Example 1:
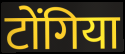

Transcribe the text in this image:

टोंगिया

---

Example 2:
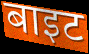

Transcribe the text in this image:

बाइट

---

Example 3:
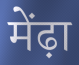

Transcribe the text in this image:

मेंढ़ा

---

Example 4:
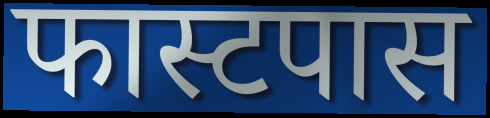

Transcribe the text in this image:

फास्टपास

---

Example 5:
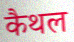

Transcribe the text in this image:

कैथल